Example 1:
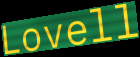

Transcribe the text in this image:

Lovell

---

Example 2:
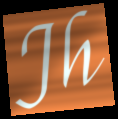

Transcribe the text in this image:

Jh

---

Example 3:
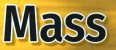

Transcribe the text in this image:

Mass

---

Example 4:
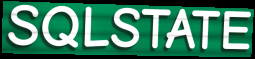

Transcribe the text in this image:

SQLSTATE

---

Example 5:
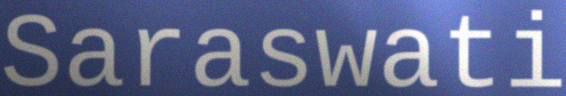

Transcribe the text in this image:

Saraswati